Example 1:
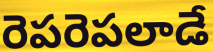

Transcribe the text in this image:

రెపరెపలాడే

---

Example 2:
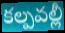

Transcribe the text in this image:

కల్పవల్లీ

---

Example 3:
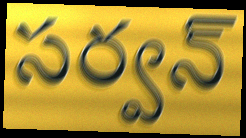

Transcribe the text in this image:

సర్వన్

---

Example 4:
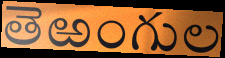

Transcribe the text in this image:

తెఱంగుల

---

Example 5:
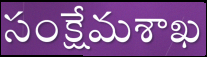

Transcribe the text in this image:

సంక్షేమశాఖ